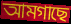
আমগাছে